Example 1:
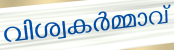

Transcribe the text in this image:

വിശ്വകർമ്മാവ്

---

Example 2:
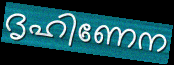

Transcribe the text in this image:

ദൃഹിണേന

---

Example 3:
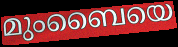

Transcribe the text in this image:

മുംബൈയെ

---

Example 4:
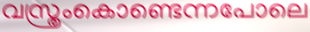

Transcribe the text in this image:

വസ്ത്രംകൊണ്ടെന്നപോലെ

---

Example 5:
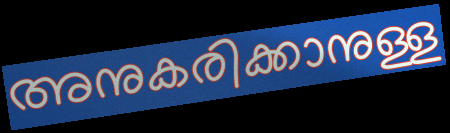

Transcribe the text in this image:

അനുകരിക്കാനുള്ള